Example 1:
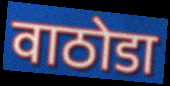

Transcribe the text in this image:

वाठोडा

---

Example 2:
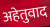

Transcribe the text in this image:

अहेतुवाद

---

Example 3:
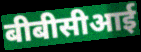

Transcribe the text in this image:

बीबीसीआई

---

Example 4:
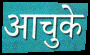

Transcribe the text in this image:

आचुके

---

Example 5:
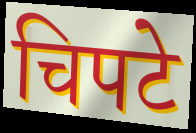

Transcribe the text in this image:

चिपटे